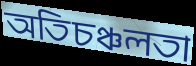
অতিচঞ্চলতা